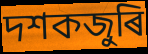
দশকজুৰি